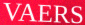
VAERS